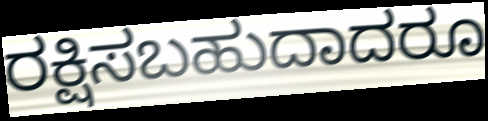
ರಕ್ಷಿಸಬಹುದಾದರೂ